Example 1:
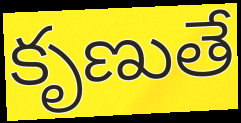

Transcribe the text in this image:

కృణుతే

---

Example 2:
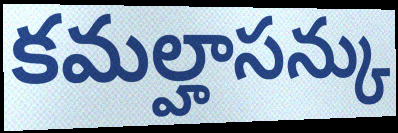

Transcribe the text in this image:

కమల్హాసన్కు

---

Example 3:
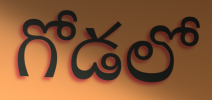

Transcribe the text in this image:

గోడలో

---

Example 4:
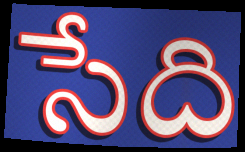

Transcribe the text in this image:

సేది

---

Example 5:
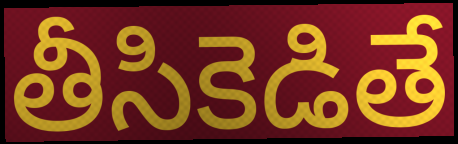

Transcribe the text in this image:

తీసికెడితే